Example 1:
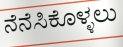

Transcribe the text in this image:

ನೆನೆಸಿಕೊಳ್ಳಲು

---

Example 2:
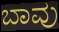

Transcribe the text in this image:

ಬಾವು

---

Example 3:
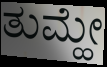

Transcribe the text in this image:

ತುಮ್ಹೇ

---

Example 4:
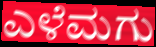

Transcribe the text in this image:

ಎಳೆಮಗು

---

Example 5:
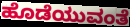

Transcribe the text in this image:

ಹೊಡೆಯುವಂತೆ